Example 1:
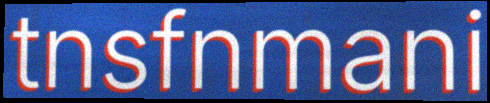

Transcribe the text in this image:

tnsfnmani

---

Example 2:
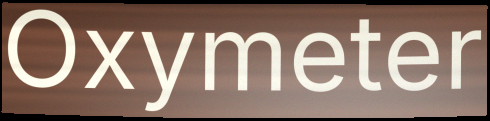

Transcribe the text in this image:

Oxymeter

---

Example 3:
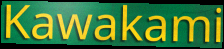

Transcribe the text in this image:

Kawakami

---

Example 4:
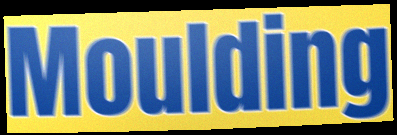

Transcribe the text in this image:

Moulding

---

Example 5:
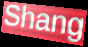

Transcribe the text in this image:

Shang